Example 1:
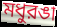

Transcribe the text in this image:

মধুরঙা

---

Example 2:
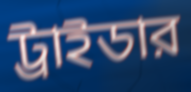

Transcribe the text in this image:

ট্রাইডার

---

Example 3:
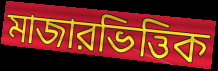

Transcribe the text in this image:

মাজারভিত্তিক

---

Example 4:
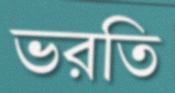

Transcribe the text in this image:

ভরতি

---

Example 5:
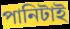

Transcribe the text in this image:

পানিটাই